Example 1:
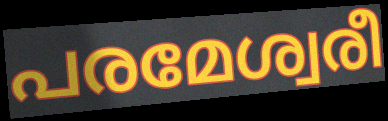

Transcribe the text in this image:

പരമേശ്വരീ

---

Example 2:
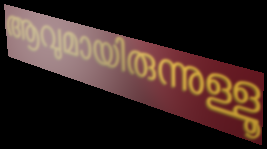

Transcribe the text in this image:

ആവുമായിരുന്നുള്ളൂ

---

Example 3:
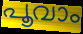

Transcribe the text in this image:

പൂവാം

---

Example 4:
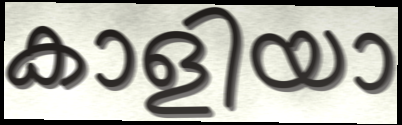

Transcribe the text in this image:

കാളിയാ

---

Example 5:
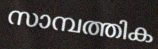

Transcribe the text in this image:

സാമ്പത്തിക